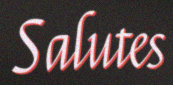
Salutes